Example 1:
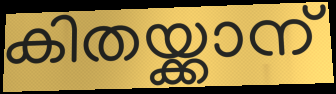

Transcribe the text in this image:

കിതയ്ക്കാന്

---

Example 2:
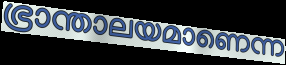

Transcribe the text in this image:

ഭ്രാന്താലയമാണെന്ന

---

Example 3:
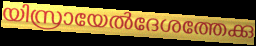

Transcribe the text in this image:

യിസ്രായേൽദേശത്തേക്കു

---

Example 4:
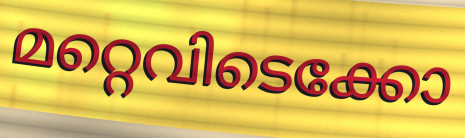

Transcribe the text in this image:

മറ്റെവിടെക്കോ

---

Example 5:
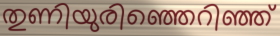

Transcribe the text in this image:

തുണിയുരിഞ്ഞെറിഞ്ഞ്